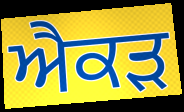
ਐਕੜ